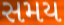
સમય